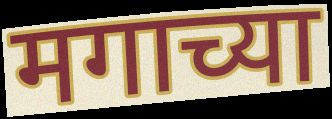
मगाच्या